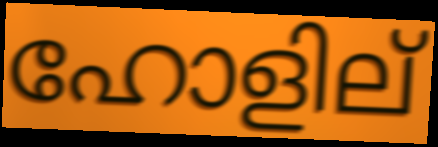
ഹോളില്